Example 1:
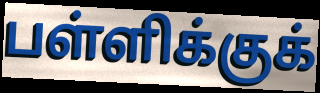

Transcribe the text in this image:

பள்ளிக்குக்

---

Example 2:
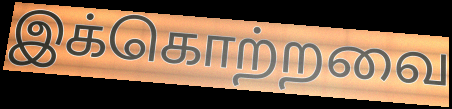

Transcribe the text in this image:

இக்கொற்றவை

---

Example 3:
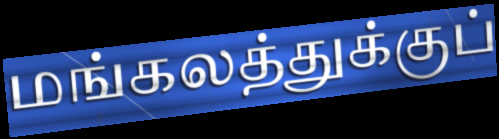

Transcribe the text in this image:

மங்கலத்துக்குப்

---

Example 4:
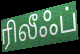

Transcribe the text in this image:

ரிலீஃப்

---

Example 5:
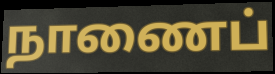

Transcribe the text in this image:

நாணைப்